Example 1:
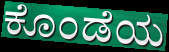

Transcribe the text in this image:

ಕೊಂಡೆಯ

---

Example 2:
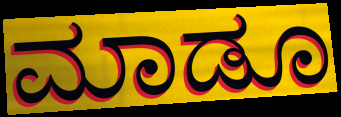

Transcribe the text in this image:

ಮಾಡೂ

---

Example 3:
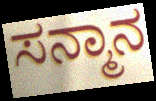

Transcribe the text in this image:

ಸನ್ಮಾನ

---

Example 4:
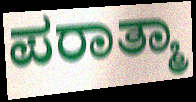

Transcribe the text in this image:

ಪರಾತ್ಮಾ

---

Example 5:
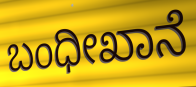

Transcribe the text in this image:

ಬಂಧೀಖಾನೆ